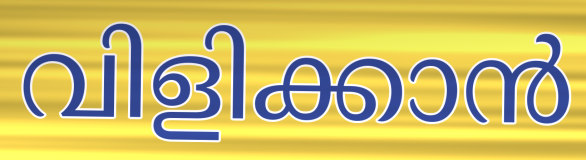
വിളിക്കാൻ